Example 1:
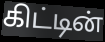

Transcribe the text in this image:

கிட்டின்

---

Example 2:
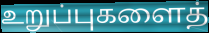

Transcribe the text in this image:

உறுப்புகளைத்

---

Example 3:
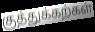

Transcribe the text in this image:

குத்துக்கற்கள்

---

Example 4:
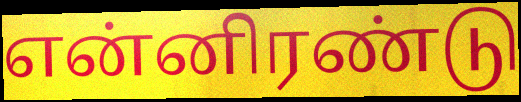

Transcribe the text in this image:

என்னிரண்டு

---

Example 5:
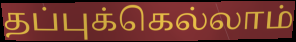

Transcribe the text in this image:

தப்புக்கெல்லாம்